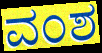
ವಂಶ